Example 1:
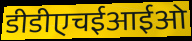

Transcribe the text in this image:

डीडीएचईआईओ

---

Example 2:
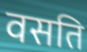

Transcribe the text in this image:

वसति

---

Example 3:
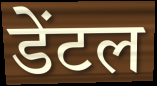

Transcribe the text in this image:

डेंटल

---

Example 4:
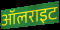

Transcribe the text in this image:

ऑलराइट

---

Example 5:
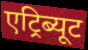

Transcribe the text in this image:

एट्रिब्यूट